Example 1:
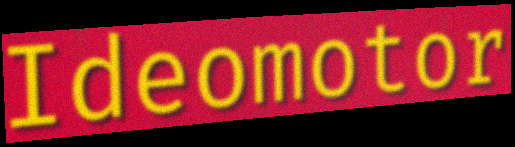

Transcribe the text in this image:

Ideomotor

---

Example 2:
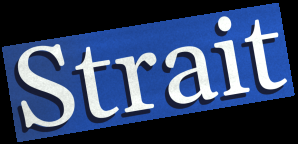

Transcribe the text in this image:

Strait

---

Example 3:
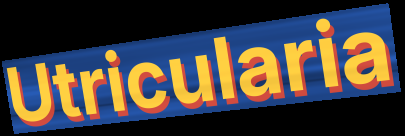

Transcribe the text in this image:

Utricularia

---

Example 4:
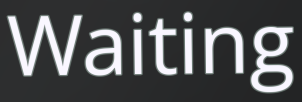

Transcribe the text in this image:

Waiting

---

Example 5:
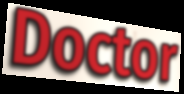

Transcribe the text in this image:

Doctor